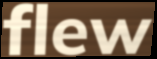
flew